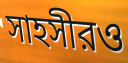
সাহসীরও